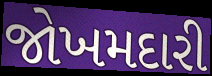
જોખમદારી